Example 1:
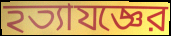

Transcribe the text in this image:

হত্যাযজ্ঞের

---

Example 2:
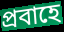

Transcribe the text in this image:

প্রবাহে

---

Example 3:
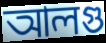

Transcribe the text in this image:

আলগু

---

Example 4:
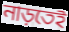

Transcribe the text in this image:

নাড়তেই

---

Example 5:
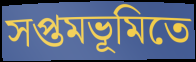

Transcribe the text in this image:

সপ্তমভূমিতে